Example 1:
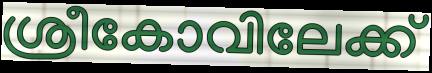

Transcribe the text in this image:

ശ്രീകോവിലേക്ക്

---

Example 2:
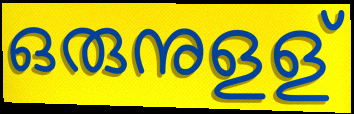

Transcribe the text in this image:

ഒരുനുളള്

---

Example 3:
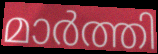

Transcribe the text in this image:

മാർത്തി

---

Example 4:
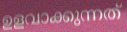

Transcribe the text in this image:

ഉളവാക്കുന്നത്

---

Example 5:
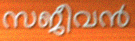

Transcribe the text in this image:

സജീവൻ